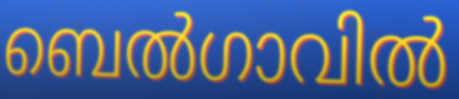
ബെൽഗാവിൽ